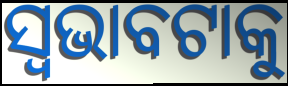
ସ୍ଵଭାବଟାକୁ